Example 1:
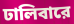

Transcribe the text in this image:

ঢালিবারে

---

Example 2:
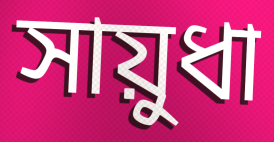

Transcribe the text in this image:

সায়ুধা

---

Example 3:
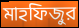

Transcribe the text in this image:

মাহফিজুর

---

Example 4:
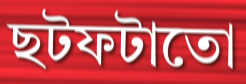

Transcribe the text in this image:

ছটফটাতো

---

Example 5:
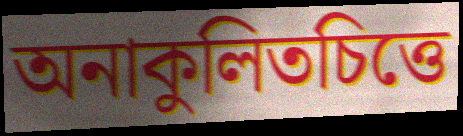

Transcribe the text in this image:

অনাকুলিতচিত্তে